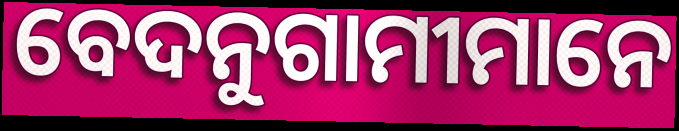
ବେଦନୁଗାମୀମାନେ